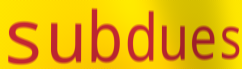
subdues